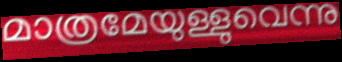
മാത്രമേയുള്ളുവെന്നു